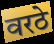
वरठे